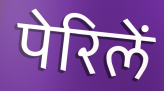
पेरिलें